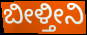
ಬೀಳ್ತೀನಿ